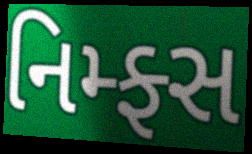
નિમ્ફ્સ